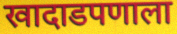
खादाडपणाला